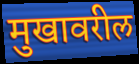
मुखावरील